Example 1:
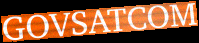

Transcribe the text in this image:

GOVSATCOM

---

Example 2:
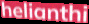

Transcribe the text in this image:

helianthi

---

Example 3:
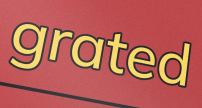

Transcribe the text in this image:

grated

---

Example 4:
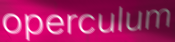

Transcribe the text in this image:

operculum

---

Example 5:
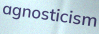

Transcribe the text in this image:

agnosticism